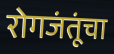
रोगजंतूंचा